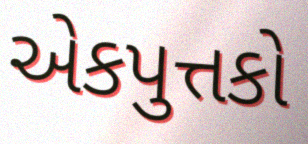
એકપુત્તકો